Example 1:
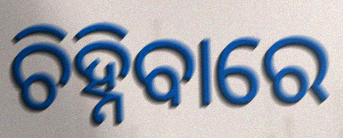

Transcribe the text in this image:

ଚିହ୍ନିବାରେ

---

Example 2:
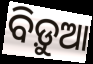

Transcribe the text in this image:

ବିଡ଼ୁଆ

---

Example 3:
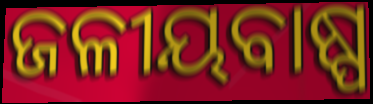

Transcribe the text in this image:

ଜଳୀୟବାଷ୍ପ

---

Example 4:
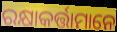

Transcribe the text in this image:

ରକ୍ଷାକର୍ତ୍ତାମାନେ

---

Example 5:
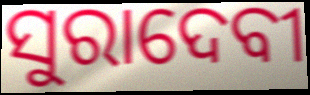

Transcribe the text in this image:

ସୁରାଦେବୀ